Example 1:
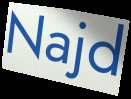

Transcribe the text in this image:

Najd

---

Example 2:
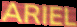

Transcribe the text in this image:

ARIEL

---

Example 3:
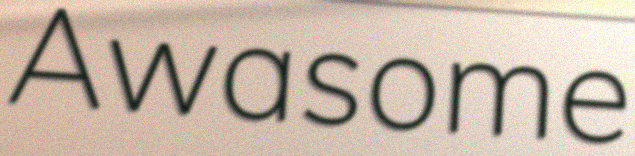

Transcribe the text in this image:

Awasome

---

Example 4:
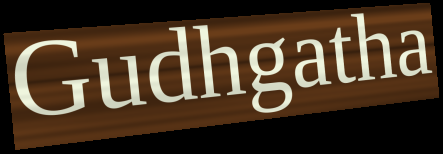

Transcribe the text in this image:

Gudhgatha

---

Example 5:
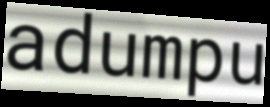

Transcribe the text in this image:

adumpu